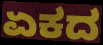
ಏಕದ